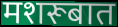
मशरूबात